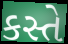
કસ્તે